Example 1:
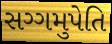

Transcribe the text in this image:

સગ્ગમુપેતિ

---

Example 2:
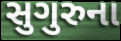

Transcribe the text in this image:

સુગુરુના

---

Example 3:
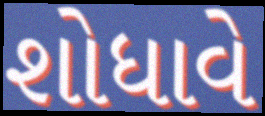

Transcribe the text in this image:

શોધાવે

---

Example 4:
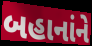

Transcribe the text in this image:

બહાનાંને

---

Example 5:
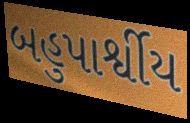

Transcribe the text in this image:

બહુપાર્શ્વીય